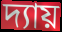
দ্যায়